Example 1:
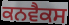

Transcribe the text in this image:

ਕਨਵੈਕਸ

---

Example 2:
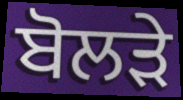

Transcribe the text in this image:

ਬੋਲੜੇ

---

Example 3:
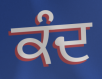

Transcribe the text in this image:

ਕੰਦ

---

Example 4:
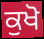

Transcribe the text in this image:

ਕੁਖੋ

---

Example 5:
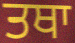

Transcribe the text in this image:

ਤਥਾ